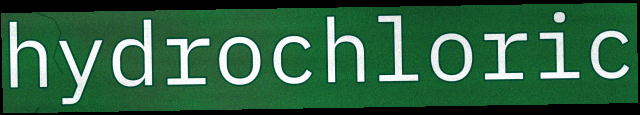
hydrochloric